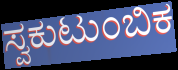
ಸ್ವಕುಟುಂಬಿಕ